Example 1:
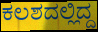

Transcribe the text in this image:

ಕಲಶದಲ್ಲಿದ್ದ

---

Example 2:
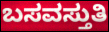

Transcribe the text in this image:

ಬಸವಸ್ತುತಿ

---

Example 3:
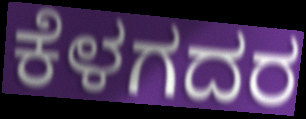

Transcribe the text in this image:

ಕೆಳಗದರ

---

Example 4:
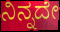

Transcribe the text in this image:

ನಿನ್ನದೇ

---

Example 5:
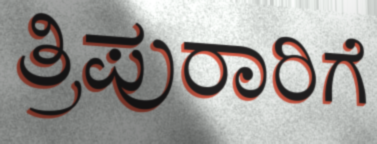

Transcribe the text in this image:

ತ್ರಿಪುರಾರಿಗೆ